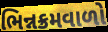
ભિન્નક્રમવાળો